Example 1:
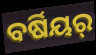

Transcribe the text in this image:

ବର୍ଷିୟର୍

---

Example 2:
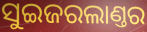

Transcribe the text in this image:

ସୁଇଜରଲାଣ୍ତର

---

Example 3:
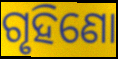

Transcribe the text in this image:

ଗୃହିଣୋ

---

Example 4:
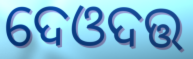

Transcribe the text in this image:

ଦେଓଦତ୍ତ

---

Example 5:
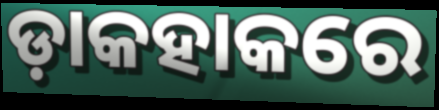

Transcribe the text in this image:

ଡ଼ାକହାକରେ